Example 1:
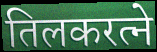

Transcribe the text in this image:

तिलकरत्ने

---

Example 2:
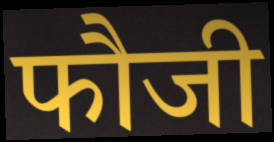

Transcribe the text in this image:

फौजी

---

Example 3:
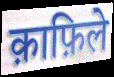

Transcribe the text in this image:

क़ाफ़िले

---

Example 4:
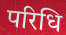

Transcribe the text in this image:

परिधि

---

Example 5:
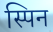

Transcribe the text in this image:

स्पिन